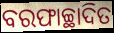
ବରଫାଚ୍ଛାଦିତ